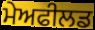
ਮੇਅਫੀਲਡ